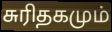
சுரிதகமும்